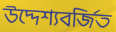
উদ্দেশ্যবর্জিত